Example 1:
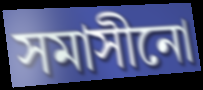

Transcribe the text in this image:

সমাসীনো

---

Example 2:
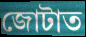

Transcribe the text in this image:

জোটাত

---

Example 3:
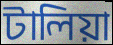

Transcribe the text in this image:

টালিয়া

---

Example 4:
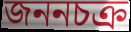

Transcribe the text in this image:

জননচক্র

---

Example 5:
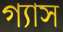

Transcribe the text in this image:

গ্যাস